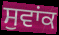
ਸੁਵਾਂਕ